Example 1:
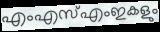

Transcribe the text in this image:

എംഎസ്എംഇകളും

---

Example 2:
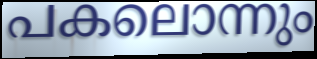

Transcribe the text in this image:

പകലൊന്നും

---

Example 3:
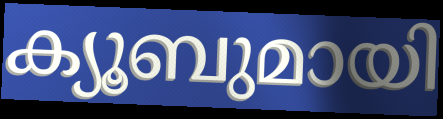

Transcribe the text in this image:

ക്യൂബുമായി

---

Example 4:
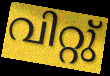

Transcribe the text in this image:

വിറ്റു്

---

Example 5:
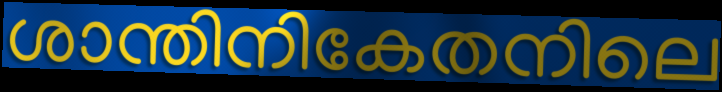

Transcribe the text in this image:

ശാന്തിനികേതനിലെ